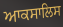
ਆਕਸਾਲਿਸ